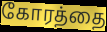
கோரத்தை